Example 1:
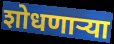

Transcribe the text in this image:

शोधणाऱ्या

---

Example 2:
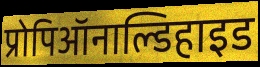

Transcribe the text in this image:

प्रोपिऑनाल्डिहाइड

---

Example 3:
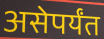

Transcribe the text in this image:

असेपर्यंत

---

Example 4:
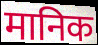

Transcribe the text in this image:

मानिक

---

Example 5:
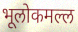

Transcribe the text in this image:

भूलोकमल्ल